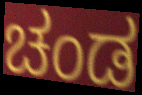
ಚಂಡ